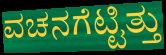
ವಚನಗೆಟ್ಟಿತ್ತು